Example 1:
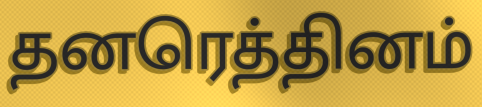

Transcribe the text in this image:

தனரெத்தினம்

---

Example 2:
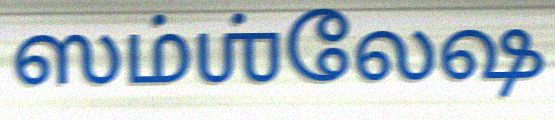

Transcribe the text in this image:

ஸம்ஶ்லேஷ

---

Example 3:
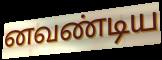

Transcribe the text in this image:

னவண்டிய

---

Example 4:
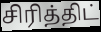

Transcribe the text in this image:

சிரித்திட்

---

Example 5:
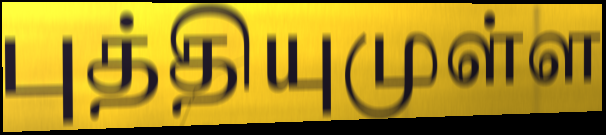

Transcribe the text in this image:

புத்தியுமுள்ள